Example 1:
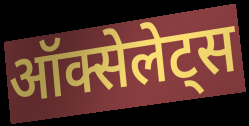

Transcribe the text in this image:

ऑक्सेलेट्स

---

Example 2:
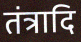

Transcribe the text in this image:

तंत्रादि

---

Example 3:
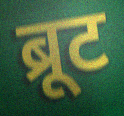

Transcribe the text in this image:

ब्रूट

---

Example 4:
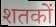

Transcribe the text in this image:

शतकों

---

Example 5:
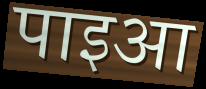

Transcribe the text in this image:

पाइआ